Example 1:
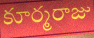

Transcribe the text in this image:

కూర్మరాజు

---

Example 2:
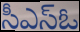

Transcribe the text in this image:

సీఎస్ఓ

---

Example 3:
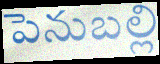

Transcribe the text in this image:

పెనుబల్లి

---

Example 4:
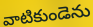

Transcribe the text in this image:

వాటికుండెను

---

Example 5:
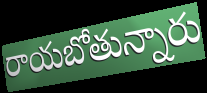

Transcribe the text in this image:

రాయబోతున్నారు